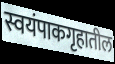
स्वयंपाकगृहातील